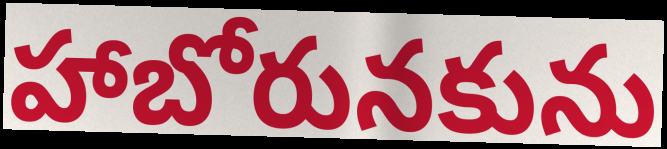
హాబోరునకును